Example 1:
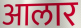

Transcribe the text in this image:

आलार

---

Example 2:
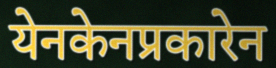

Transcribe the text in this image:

येनकेनप्रकारेन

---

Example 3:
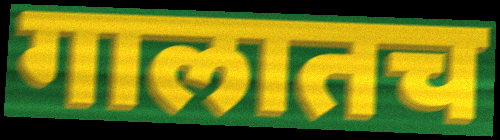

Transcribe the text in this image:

गालातच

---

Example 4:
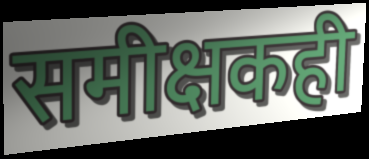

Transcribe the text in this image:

समीक्षकही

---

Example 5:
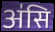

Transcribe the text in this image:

अ॑सि